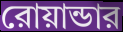
রোয়ান্ডার